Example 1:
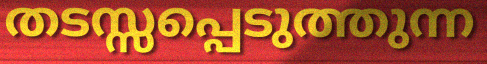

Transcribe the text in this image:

തടസ്സപ്പെടുത്തുന്ന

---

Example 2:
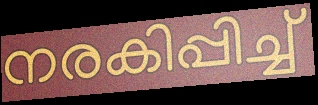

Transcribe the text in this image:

നരകിപ്പിച്ച്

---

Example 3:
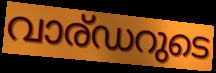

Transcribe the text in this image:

വാര്ഡറുടെ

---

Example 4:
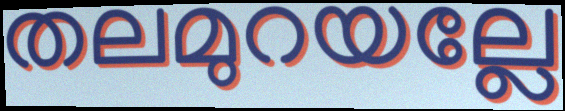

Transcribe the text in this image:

തലമുറയല്ലേ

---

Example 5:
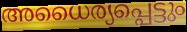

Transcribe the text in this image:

അധൈര്യപ്പെട്ടും